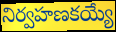
నిర్వహణకయ్యే